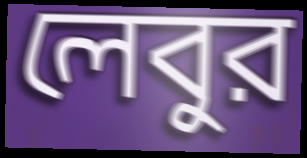
লেবুর